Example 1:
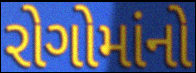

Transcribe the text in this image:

રોગોમાંનો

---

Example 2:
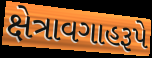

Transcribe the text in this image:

ક્ષેત્રાવગાહરૂપે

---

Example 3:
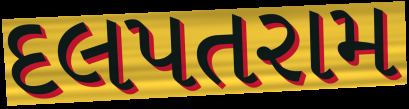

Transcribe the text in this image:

દલપતરામ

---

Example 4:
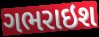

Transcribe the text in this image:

ગભરાઇશ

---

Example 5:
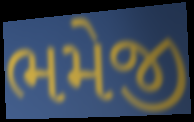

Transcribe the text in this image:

ભમેજી